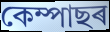
কেম্পাছৰ